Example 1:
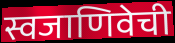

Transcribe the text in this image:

स्वजाणिवेची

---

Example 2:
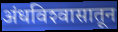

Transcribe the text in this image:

अंधविश्वासातून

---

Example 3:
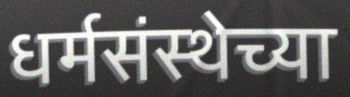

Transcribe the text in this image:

धर्मसंस्थेच्या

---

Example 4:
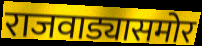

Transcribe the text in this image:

राजवाड्यासमोर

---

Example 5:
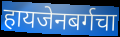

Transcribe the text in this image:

हायजेनबर्गचा